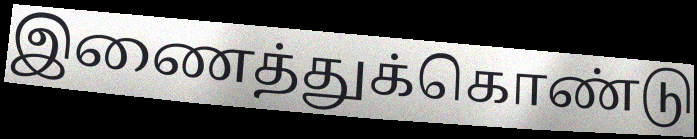
இணைத்துக்கொண்டு